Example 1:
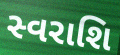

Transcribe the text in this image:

સ્વરાશિ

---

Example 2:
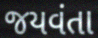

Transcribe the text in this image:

જયવંતા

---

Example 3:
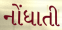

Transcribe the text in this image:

નોંધાતી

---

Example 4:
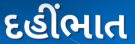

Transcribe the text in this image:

દહીંભાત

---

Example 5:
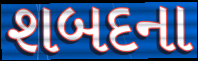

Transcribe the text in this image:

શબદના